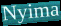
Nyima